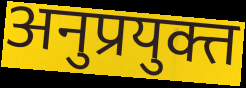
अनुप्रयुक्त